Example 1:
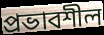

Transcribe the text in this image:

প্রভাবশীল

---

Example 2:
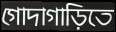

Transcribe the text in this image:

গোদাগাড়িতে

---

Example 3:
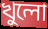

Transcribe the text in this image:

খুলো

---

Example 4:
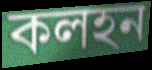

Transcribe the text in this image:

কলহন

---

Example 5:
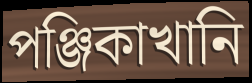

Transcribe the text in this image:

পঞ্জিকাখানি